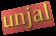
unjal